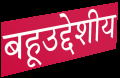
बहूउद्देशीय